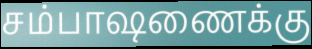
சம்பாஷணைக்கு